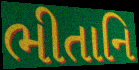
ભીતાનિ